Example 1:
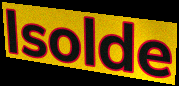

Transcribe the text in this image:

Isolde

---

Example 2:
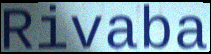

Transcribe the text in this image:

Rivaba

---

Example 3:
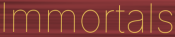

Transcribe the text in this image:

Immortals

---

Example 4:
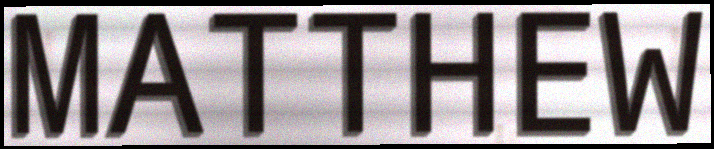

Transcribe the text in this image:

MATTHEW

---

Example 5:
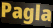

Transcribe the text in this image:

Pagla